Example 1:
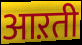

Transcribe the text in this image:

आऱती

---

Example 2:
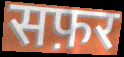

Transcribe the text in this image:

सफ़र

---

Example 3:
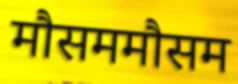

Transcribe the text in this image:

मौसममौसम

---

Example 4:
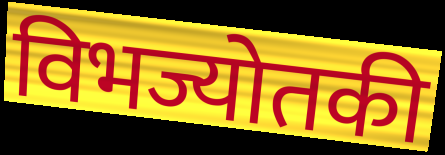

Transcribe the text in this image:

विभज्योतकी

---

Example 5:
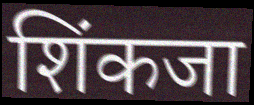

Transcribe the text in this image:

शिंकजा